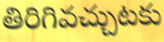
తిరిగివచ్చుటకు